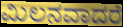
ಮಿಲನವಾದರೆ